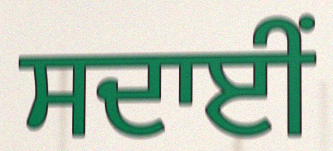
ਸਦਾਈਂ